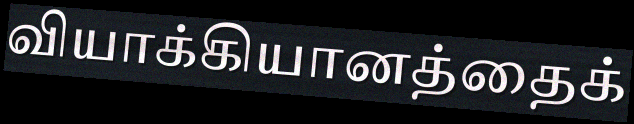
வியாக்கியானத்தைக்